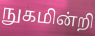
நுகமின்றி